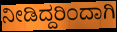
ನೀಡಿದ್ದರಿಂದಾಗಿ